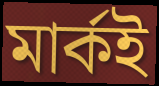
মার্কই